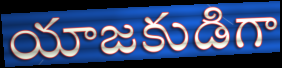
యాజకుడిగా